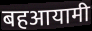
बहआयामी